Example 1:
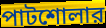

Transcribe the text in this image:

পাটশোলার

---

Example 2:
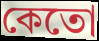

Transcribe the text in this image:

কেতো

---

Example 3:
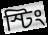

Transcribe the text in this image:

স্টিং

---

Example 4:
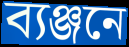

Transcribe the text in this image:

ব্যঞ্জনে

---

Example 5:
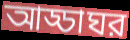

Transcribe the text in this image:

আড্ডাঘর